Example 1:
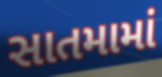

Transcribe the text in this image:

સાતમામાં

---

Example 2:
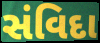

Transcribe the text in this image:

સંવિદા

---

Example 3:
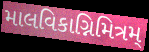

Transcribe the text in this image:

માલવિકાગ્નિમિત્રમ્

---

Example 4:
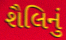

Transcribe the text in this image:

શૈલિનું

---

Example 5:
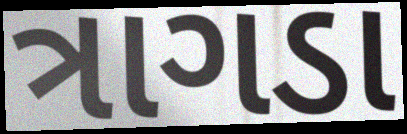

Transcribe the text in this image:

ત્રાગડા